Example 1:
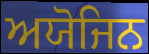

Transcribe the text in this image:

ਅਯੋਜਿਨ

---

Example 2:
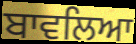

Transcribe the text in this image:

ਬਾਵਲਿਆ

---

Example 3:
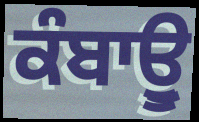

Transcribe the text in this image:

ਕੰਬਾਊੁ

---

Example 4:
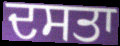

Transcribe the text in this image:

ਦਸਤਾ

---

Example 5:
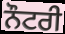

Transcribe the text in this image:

ਨੌਟਰੀ